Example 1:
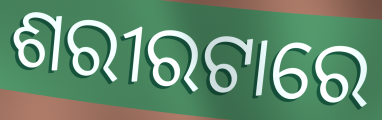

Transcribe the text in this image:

ଶରୀରଟାରେ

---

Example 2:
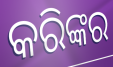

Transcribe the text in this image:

କରିଙ୍କର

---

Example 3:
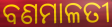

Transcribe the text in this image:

ବଣମାଳତୀ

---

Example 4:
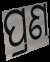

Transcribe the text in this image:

ପ୍ରଣ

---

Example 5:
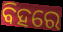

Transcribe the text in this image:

ବିହରେ